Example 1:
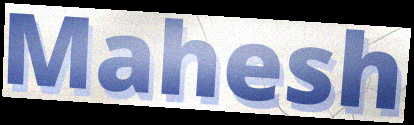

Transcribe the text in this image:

Mahesh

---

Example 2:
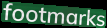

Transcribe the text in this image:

footmarks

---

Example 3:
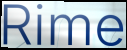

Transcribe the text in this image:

Rime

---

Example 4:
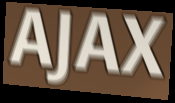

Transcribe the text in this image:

AJAX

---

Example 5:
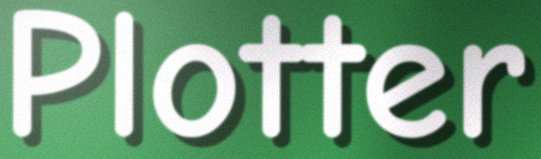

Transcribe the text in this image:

Plotter